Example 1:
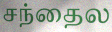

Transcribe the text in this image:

சந்தைல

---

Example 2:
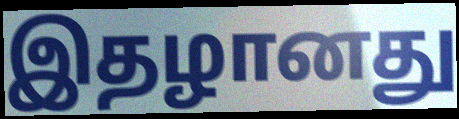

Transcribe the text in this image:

இதழானது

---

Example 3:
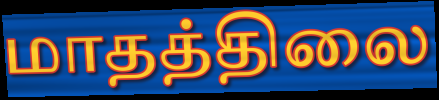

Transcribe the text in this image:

மாதத்திலை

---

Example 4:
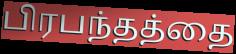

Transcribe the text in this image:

பிரபந்தத்தை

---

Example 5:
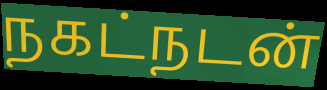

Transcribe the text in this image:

நகட்நடன்